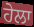
ਹੇਲਾ